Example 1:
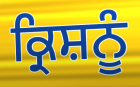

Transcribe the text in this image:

ਕ੍ਰਿਸ਼ਨੂੰ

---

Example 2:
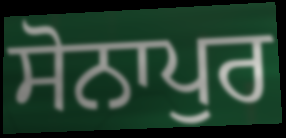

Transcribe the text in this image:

ਸੋਨਾਪੁਰ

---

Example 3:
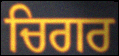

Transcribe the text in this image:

ਚਿਗਰ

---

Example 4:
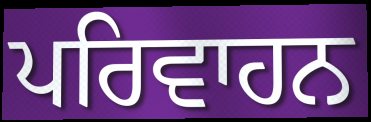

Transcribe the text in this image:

ਪਰਿਵਾਹਨ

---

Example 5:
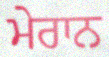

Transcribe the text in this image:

ਮੇਰਾਨ